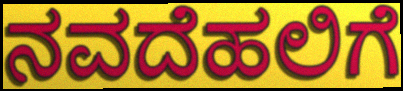
ನವದೆಹಲಿಗೆ